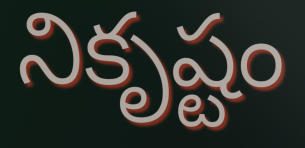
నికృష్టం